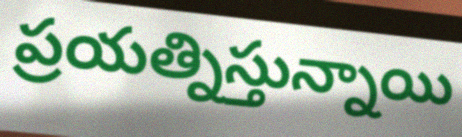
ప్రయత్నిస్తున్నాయి